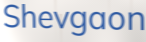
Shevgaon